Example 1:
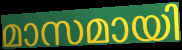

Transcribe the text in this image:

മാസമായി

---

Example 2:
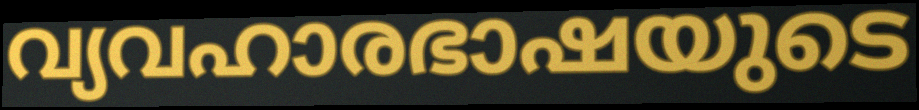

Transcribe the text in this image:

വ്യവഹാരഭാഷയുടെ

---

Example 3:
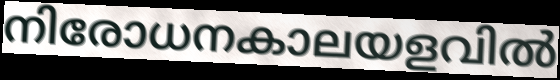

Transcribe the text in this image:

നിരോധനകാലയളവിൽ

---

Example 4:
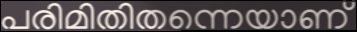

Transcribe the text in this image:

പരിമിതിതന്നെയാണ്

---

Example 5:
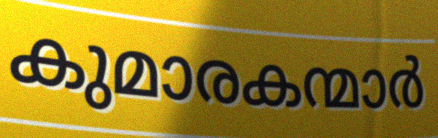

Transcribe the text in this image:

കുമാരകന്മാർ